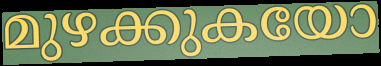
മുഴക്കുകയോ